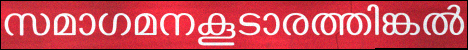
സമാഗമനകൂടാരത്തിങ്കൽ